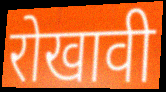
रोखावी